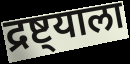
द्रष्ट्याला